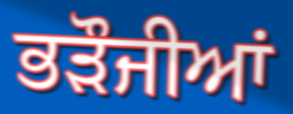
ਭੜੌਜੀਆਂ